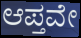
ಆಪ್ತವೇ